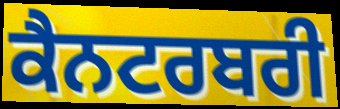
ਕੈਨਟਰਬਰੀ